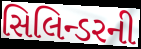
સિલિન્ડરની